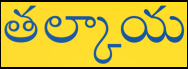
తల్కాయ